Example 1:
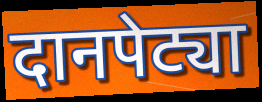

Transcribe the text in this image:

दानपेट्या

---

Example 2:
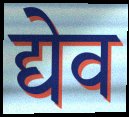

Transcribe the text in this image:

द्येव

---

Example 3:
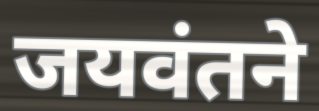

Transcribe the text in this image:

जयवंतने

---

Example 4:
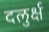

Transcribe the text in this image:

दलुर्क्ष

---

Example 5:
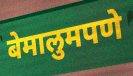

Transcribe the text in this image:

बेमालुमपणे